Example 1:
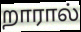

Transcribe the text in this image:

றாரால்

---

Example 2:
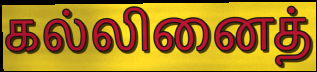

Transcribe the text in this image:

கல்லினைத்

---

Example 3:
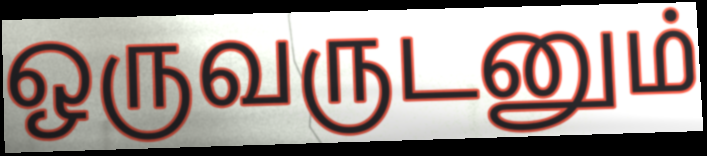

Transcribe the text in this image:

ஒருவருடனும்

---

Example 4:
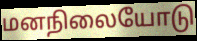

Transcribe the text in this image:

மனநிலையோடு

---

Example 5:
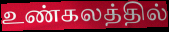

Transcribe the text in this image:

உண்கலத்தில்